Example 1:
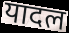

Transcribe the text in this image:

यादल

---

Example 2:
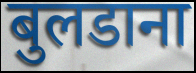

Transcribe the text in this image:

बुलडाना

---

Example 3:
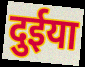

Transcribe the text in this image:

दुईया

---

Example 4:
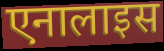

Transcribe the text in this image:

एनालाइस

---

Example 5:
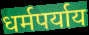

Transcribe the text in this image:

धर्मपर्याय